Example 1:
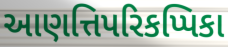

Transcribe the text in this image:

આણત્તિપરિકપ્પિકા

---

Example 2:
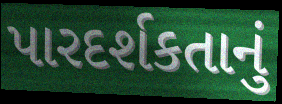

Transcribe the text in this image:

પારદર્શકતાનું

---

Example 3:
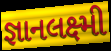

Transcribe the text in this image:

જ્ઞાનલક્ષ્મી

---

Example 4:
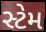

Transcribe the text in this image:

સ્ટેમ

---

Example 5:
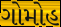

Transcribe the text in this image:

ગોમોહ